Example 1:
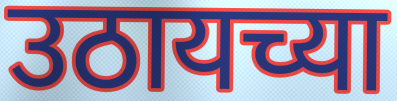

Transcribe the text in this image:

उठायच्या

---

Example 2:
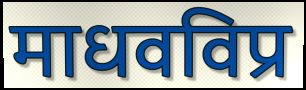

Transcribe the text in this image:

माधवविप्र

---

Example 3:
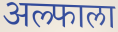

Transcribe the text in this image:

अल्फाला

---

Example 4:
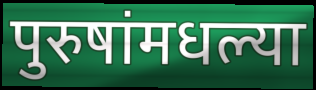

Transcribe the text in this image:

पुरुषांमधल्या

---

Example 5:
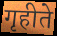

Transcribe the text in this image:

गृहीते